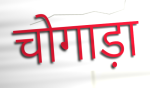
चोगाड़ा